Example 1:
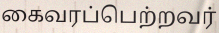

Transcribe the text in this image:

கைவரப்பெற்றவர்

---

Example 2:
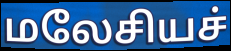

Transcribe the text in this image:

மலேசியச்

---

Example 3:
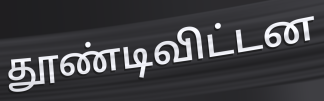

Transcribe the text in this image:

தூண்டிவிட்டன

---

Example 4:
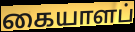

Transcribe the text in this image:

கையாளப்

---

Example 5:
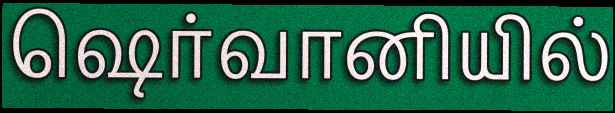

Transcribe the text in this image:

ஷெர்வானியில்